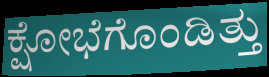
ಕ್ಷೋಭೆಗೊಂಡಿತ್ತು